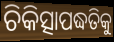
ଚିକିତ୍ସାପଦ୍ଧତିକୁ